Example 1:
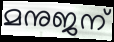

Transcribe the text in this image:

മനുജന്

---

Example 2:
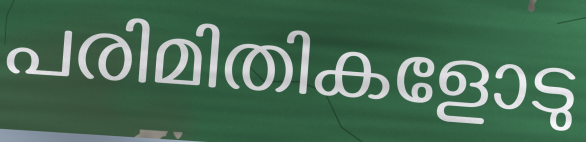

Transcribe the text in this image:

പരിമിതികളോടു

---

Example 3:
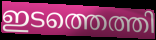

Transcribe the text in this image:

ഇടത്തെത്തി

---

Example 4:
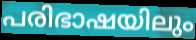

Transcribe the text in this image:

പരിഭാഷയിലും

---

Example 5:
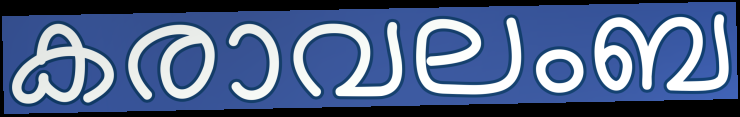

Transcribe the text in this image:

കരാവലംബ